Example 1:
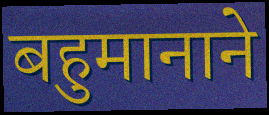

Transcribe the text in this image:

बहुमानाने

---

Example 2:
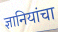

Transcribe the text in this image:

ज्ञानियांचा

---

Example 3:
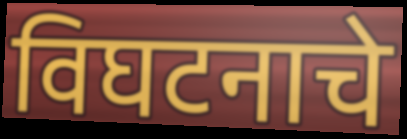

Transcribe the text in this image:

विघटनाचे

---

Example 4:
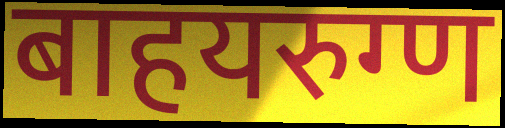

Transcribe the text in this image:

बाहयरुग्ण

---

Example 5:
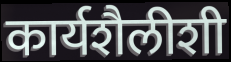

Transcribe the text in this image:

कार्यशैलीशी